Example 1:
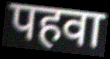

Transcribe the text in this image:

पहवा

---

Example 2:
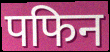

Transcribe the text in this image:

पफिन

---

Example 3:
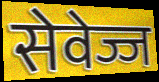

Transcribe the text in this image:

सेवेज्ज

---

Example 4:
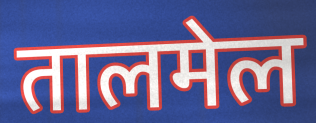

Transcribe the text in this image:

तालमेल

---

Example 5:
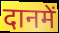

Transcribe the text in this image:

दानमें